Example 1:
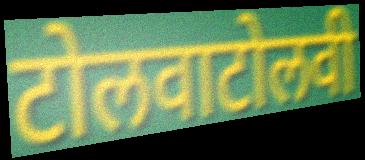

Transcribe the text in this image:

टोलवाटोलवी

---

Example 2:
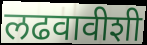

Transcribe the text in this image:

लढवावीशी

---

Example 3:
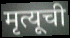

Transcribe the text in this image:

मृत्यूची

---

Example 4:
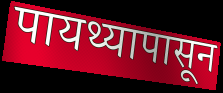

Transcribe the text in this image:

पायथ्यापासून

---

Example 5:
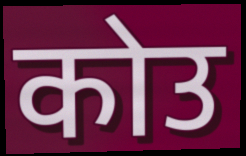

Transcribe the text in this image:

कोउ